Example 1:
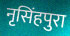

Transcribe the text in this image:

नृसिंहपुरा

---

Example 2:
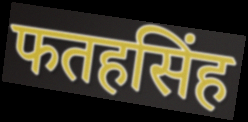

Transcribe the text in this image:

फतहसिंह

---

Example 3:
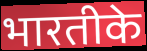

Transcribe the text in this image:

भारतीके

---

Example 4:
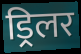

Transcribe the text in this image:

ड्रिलर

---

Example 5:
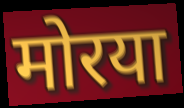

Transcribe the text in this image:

मोरया